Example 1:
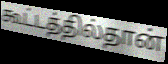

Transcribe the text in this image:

கூட்டத்தில்தான்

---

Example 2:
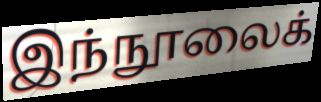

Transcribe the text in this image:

இந்நூலைக்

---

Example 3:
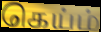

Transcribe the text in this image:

கெய்ம்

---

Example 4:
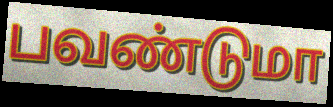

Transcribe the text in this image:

பவண்டுமா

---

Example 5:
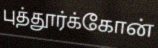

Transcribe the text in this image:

புத்தூர்க்கோன்